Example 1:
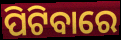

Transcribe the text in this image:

ପିଟିବାରେ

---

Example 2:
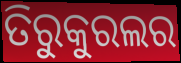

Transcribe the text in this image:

ତିରୁକୁରଲର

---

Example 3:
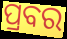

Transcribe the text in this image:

ପ୍ରବର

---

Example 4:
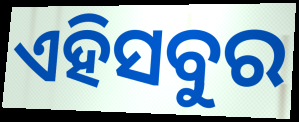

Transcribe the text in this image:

ଏହିସବୁର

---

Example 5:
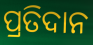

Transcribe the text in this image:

ପ୍ରତିଦାନ